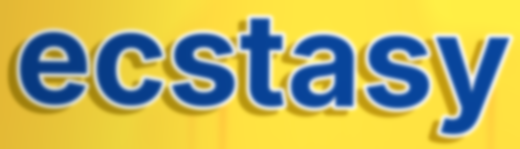
ecstasy